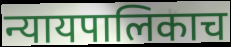
न्यायपालिकाच